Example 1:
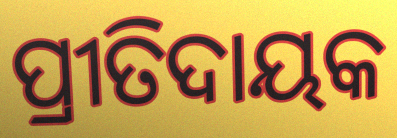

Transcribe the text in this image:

ପ୍ରୀତିଦାୟକ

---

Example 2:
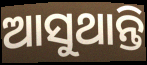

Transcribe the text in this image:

ଆସୁଥାନ୍ତି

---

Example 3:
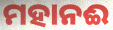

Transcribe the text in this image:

ମହାନଈ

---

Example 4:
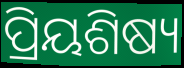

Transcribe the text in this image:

ପ୍ରିୟଶିଷ୍ୟ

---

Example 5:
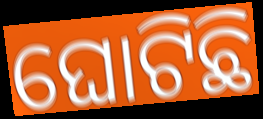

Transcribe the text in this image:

ଘୋଟିଛି